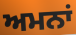
ਅਮਨਾਂ